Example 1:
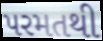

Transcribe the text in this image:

પરમતથી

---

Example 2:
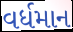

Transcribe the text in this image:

વર્ધમાન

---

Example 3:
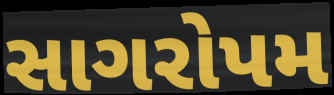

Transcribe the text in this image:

સાગરોપમ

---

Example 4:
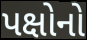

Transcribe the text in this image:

પક્ષોનો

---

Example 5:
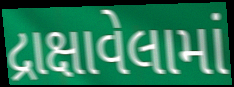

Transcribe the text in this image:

દ્રાક્ષાવેલામાં